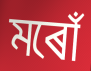
মৰোঁ